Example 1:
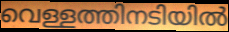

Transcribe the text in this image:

വെള്ളത്തിനടിയിൽ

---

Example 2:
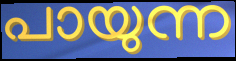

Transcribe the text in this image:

പായുന്ന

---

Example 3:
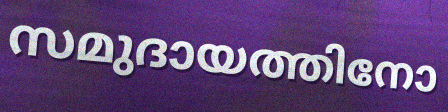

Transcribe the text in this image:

സമുദായത്തിനോ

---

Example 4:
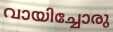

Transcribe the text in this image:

വായിച്ചോരു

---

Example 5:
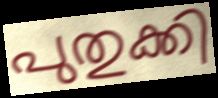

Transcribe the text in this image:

പുതുക്കി